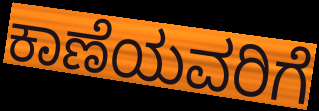
ಕಾಣೆಯವರಿಗೆ